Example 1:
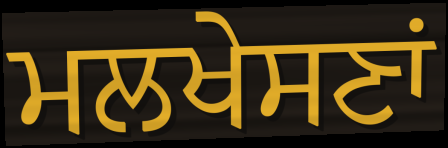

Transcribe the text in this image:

ਮਲਖੇਸਣਾਂ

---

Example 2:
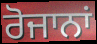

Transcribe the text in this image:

ਰੋਜਾਨਾਂ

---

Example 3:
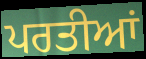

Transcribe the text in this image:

ਪਰਤੀਆਂ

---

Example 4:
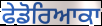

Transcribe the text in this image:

ਫੇਡੋਰਿਆਕਾ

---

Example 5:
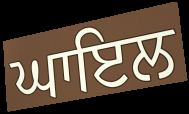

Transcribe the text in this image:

ਘਾਇਲ